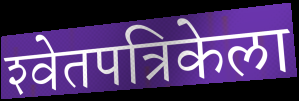
श्वेतपत्रिकेला